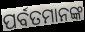
ପର୍ବତମାନଙ୍କ